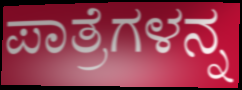
ಪಾತ್ರೆಗಳನ್ನ